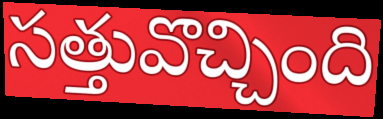
సత్తువొచ్చింది